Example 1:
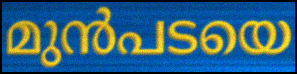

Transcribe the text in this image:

മുൻപടയെ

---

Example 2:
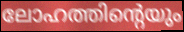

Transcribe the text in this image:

ലോഹത്തിന്റെയും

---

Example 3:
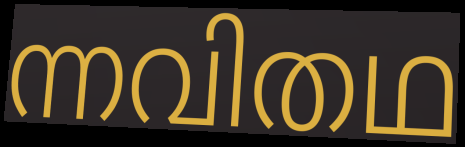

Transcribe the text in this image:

ന്നവിതഥ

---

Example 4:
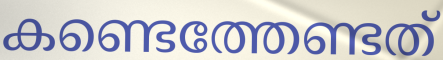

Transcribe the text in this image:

കണ്ടെത്തേണ്ടത്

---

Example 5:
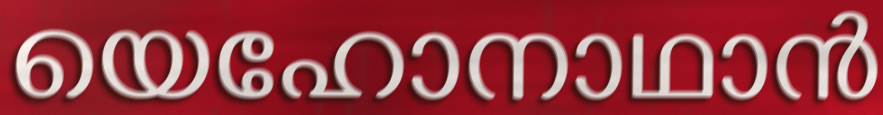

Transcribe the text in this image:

യെഹോനാഥാൻ